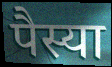
पैस्या